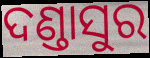
ଦଣ୍ଡାସୁର